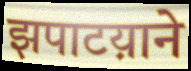
झपाटय़ाने